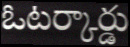
ఓటర్కార్డు